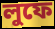
লুফে